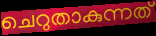
ചെറുതാകുന്നത്